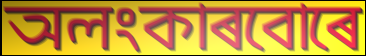
অলংকাৰবোৰে